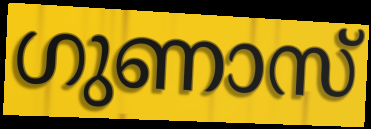
ഗുണാസ്